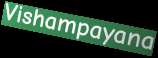
Vishampayana